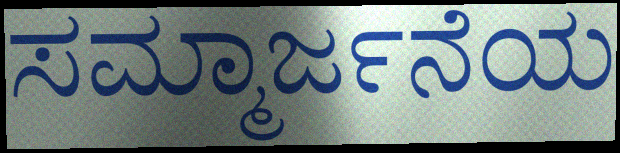
ಸಮ್ಮಾರ್ಜನೆಯ